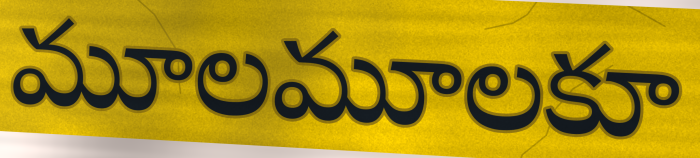
మూలమూలకూ